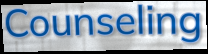
Counseling